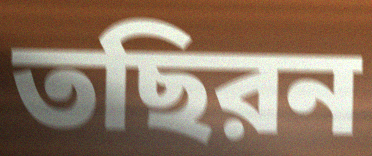
তছিরন